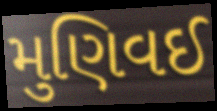
મુણિવઈ